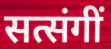
सत्संगीं